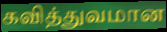
கவித்துவமான